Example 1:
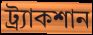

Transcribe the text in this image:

ট্র্যাকশান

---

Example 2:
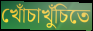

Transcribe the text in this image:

খোঁচাখুঁচিতে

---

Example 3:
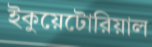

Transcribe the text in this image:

ইকুয়েটোরিয়াল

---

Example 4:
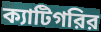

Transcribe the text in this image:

ক্যাটিগরির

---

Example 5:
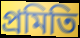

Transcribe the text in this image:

প্রমিতি